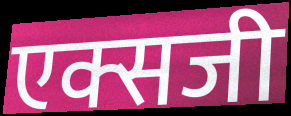
एक्सजी